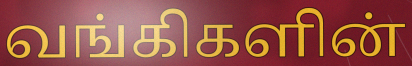
வங்கிகளின்